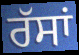
ਰੱਸਾਂ